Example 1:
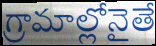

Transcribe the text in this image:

గ్రామాల్లోనైతే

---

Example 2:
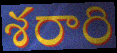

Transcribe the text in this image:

శరారి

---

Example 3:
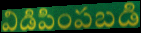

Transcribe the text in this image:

విడిపింపబడి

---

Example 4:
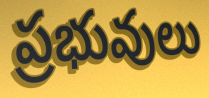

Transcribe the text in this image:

ప్రభువులు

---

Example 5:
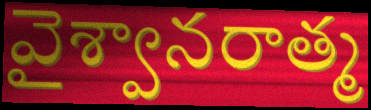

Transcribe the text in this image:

వైశ్వానరాత్మ